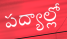
పద్యాల్లో